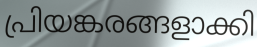
പ്രിയങ്കരങ്ങളാക്കി